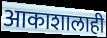
आकाशालाही